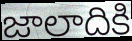
జాలాదికి